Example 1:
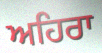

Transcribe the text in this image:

ਅਹਿਰਾ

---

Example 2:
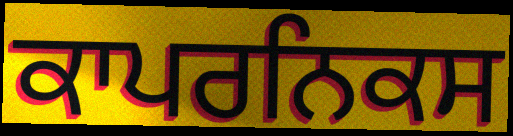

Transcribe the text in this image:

ਕਾਪਰਨਿਕਸ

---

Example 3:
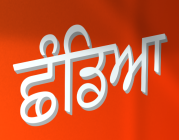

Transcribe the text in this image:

ਛੰਡਿਆ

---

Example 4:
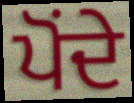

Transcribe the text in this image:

ਪੋਂਦੇ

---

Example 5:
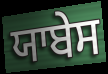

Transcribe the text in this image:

ਯਾਬੇਸ